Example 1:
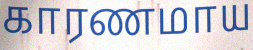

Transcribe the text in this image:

காரணமாய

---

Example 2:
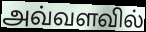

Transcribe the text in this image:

அவ்வளவில்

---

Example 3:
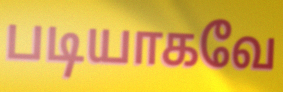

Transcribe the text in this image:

படியாகவே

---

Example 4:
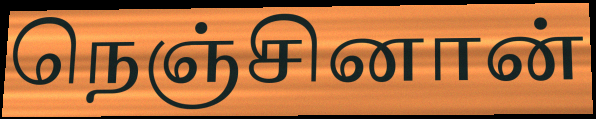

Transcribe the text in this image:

நெஞ்சினான்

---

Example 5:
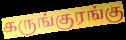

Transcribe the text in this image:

கருங்குரங்கு